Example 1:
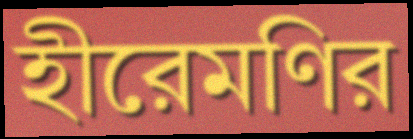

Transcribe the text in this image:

হীরেমণির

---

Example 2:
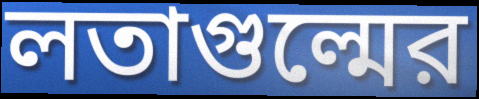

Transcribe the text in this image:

লতাগুল্মের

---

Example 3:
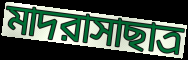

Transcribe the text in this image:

মাদরাসাছাত্র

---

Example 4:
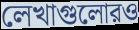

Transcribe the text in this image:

লেখাগুলোরও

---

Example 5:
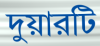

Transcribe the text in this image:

দুয়ারটি